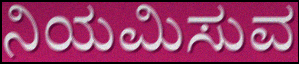
ನಿಯಮಿಸುವ